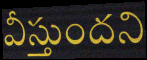
వీస్తుందని